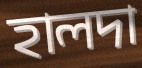
হালদা